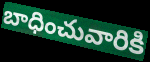
బాధించువారికి